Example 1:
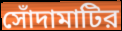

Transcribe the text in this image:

সোঁদামাটির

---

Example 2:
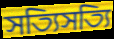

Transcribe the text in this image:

সত্যিসত্যি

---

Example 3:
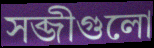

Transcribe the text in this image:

সব্জীগুলো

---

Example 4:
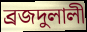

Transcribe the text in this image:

ব্রজদুলালী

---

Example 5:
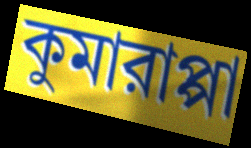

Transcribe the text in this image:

কুমারাপ্পা